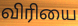
விரியை